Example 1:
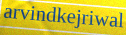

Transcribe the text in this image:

arvindkejriwal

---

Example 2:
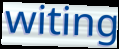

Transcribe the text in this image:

witing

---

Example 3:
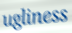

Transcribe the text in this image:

ugliness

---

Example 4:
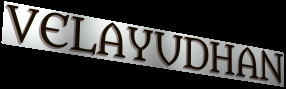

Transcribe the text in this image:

VELAYUDHAN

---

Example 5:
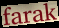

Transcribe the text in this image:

farak